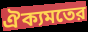
ঐক্যমতের